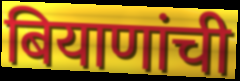
बियाणांची